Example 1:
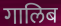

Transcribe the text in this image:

गालिब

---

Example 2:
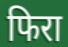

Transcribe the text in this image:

फिरा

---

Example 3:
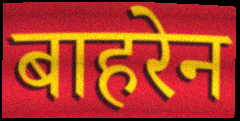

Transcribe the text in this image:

बाहरेन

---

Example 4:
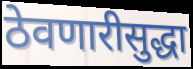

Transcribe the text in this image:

ठेवणारीसुद्धा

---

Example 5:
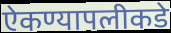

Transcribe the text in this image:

ऐकण्यापलीकडे